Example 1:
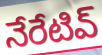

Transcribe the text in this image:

నేరేటివ్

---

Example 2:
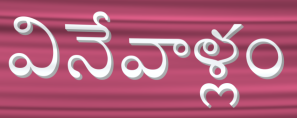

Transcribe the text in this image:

వినేవాళ్లం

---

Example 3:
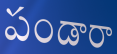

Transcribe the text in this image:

పండారా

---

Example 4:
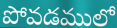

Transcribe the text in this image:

పోవడములో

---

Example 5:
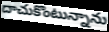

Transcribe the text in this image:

దాచుకొంటున్నాను